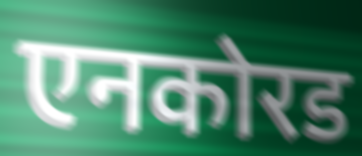
एनकोरड